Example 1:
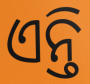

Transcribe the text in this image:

ଏନ୍ତି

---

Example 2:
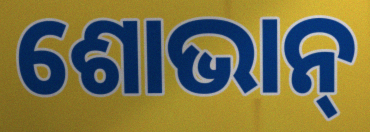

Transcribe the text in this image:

ଶୋଭାନ୍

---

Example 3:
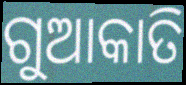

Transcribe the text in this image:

ଗୁଆକାତି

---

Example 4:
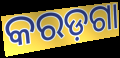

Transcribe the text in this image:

କରଡ଼ଗା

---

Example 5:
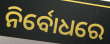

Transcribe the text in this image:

ନିର୍ବୋଧରେ